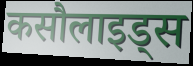
कसौलाइड्स